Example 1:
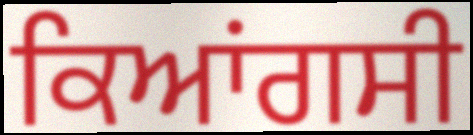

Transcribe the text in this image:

ਕਿਆਂਗਸੀ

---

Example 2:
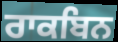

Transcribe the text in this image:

ਰਾਕਬਿਨ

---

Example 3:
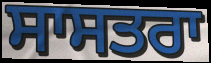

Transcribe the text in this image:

ਸਾਸਤਰਾ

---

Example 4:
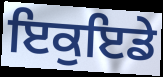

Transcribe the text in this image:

ਇਕੁਇਡੇ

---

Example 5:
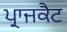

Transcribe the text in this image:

ਪ੍ਰਾਜਕੈਟ